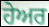
ਹੇਅਰ